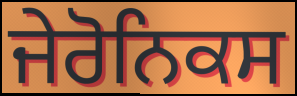
ਜੇਰੋਨਿਕਸ